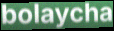
bolaycha